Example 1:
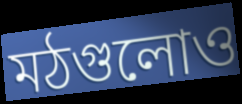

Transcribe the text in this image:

মঠগুলোও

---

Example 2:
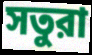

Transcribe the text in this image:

সতুরা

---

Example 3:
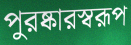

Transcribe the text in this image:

পুরষ্কারস্বরূপ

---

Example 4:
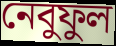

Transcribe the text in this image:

নেবুফুল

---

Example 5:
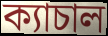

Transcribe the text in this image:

ক্যাচাল